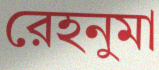
রেহনুমা